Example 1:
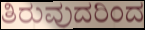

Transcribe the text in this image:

ತಿರುವುದರಿಂದ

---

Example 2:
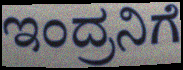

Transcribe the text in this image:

ಇಂದ್ರನಿಗೆ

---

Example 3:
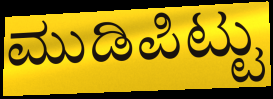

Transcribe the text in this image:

ಮುಡಿಪಿಟ್ಟು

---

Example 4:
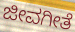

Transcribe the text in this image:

ಜೀವಗೀತೆ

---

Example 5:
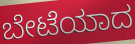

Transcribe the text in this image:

ಬೇಟೆಯಾದ